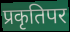
प्रकृतिपर